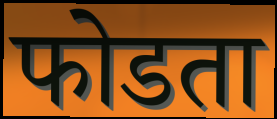
फोडता